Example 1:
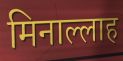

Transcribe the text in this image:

मिनाल्लाह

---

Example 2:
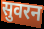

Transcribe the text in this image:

सुवरन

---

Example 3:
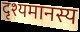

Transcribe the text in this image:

दृश्यमानस्य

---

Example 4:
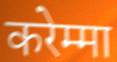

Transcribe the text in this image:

करेम्मा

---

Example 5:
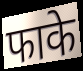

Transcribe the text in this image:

फाके